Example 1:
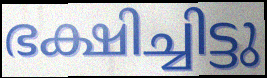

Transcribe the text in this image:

ഭക്ഷിച്ചിട്ടു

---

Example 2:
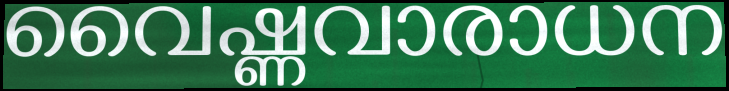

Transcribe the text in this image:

വൈഷ്ണവാരാധന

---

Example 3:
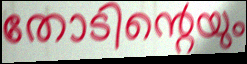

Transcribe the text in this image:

തോടിന്റെയും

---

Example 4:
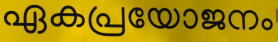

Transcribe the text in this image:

ഏകപ്രയോജനം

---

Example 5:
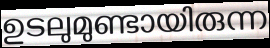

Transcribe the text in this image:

ഉടലുമുണ്ടായിരുന്ന